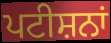
ਪਟੀਸ਼ਨਾਂ